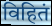
विहितं